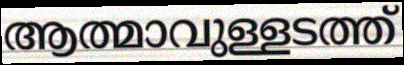
ആത്മാവുള്ളടത്ത്